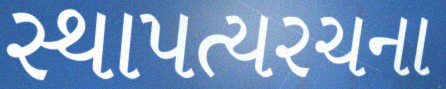
સ્થાપત્યરચના